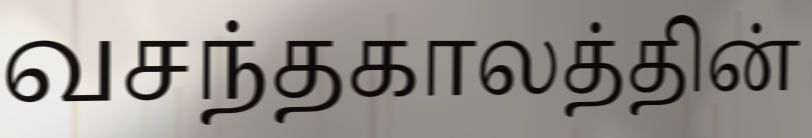
வசந்தகாலத்தின்